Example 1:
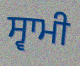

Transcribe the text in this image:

ਸ੍ਵਾਮੀ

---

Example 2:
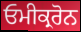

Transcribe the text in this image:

ਓਮੀਕ੍ਰਰੋਨ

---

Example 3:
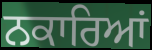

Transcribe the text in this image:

ਨਕਾਰਿਆਂ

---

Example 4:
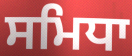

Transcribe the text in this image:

ਸਮਿਧਾ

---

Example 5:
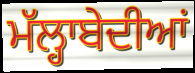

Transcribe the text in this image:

ਮੱਲ੍ਹਾਬੇਦੀਆਂ